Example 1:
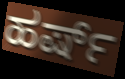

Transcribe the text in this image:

ಹರ್ಷ್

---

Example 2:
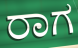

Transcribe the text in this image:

ರಾಗ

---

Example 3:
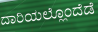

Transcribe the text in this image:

ದಾರಿಯಲ್ಲೊಂದೆಡೆ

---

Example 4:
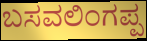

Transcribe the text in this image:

ಬಸವಲಿಂಗಪ್ಪ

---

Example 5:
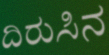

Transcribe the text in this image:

ದಿರುಸಿನ